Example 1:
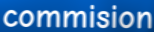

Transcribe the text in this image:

commision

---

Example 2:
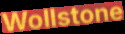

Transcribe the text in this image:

Wollstone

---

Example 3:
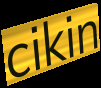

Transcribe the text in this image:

cikin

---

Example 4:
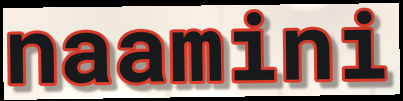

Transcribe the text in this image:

naamini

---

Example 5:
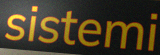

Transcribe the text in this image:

sistemi